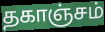
தகாஞ்சம்